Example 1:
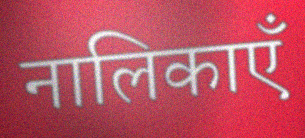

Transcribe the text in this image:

नालिकाएँ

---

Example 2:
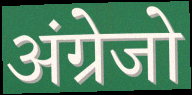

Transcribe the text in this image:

अंग्रेजो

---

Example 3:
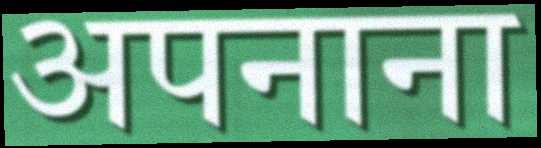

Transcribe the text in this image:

अपनाना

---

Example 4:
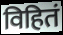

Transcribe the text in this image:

विहितं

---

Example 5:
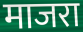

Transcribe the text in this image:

माजरा